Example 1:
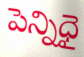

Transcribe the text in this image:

పెన్నిధై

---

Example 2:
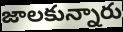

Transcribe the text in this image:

జాలకున్నారు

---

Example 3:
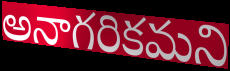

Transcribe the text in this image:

అనాగరికమని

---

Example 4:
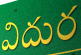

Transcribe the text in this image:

విదుర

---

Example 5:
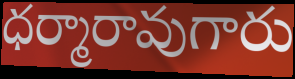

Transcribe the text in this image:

ధర్మారావుగారు